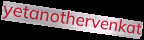
yetanothervenkat